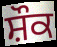
ਸ਼ੌਕ